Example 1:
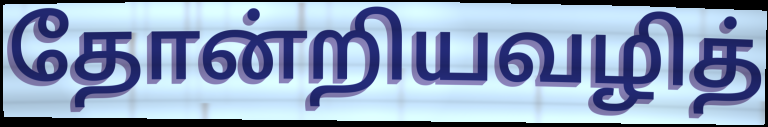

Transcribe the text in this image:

தோன்றியவழித்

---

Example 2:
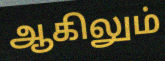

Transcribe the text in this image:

ஆகிலும்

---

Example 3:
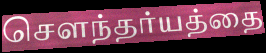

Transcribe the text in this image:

செளந்தர்யத்தை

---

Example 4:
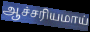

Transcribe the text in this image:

ஆச்சரியமாய்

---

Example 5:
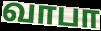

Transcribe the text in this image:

வாபா